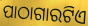
ପାଠାଗାରଟିଏ